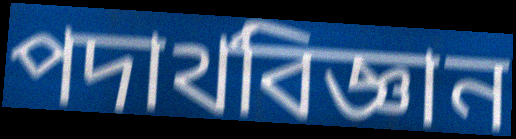
পদাৰ্থবিজ্ঞান